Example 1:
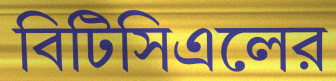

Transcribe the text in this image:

বিটিসিএলের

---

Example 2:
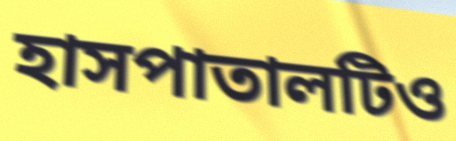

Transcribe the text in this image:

হাসপাতালটিও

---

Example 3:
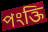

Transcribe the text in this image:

পংক্তি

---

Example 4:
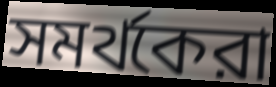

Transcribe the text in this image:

সমর্থকেরা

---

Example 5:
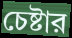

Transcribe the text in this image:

চেষ্টার